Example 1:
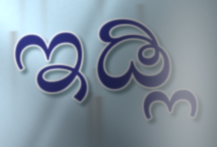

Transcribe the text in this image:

ಇಡ್ಲಿ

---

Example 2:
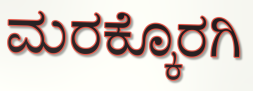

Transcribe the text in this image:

ಮರಕ್ಕೊರಗಿ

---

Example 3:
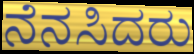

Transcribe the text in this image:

ನೆನಸಿದರು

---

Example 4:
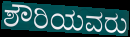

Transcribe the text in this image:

ಶೌರಿಯವರು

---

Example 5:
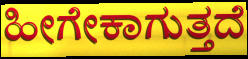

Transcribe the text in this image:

ಹೀಗೇಕಾಗುತ್ತದೆ